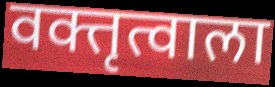
वक्तृत्वाला